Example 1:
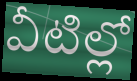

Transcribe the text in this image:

వీటిల్లో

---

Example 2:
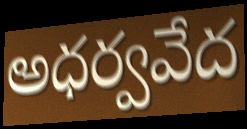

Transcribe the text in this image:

అధర్వవేద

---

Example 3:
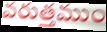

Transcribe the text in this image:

వరుత్తముం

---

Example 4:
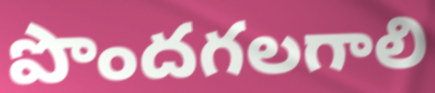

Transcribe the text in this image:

పొందగలగాలి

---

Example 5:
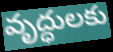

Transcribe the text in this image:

వృద్ధులకు